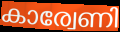
കാര്വേണി